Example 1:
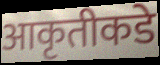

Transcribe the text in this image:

आकृतीकडे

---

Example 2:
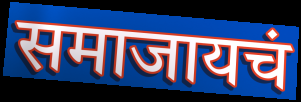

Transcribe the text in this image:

समाजायचं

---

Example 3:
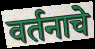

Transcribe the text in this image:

वर्तनाचे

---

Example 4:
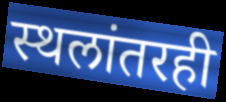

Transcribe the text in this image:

स्थलांतरही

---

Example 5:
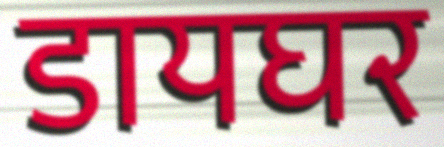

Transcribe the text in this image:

डायघर